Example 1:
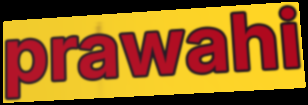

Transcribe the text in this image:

prawahi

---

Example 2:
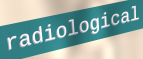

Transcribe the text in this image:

radiological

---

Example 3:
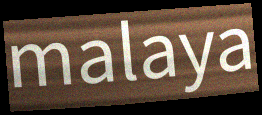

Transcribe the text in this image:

malaya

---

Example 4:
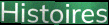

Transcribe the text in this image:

Histoires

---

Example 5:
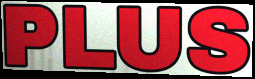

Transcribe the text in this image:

PLUS